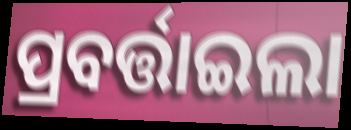
ପ୍ରବର୍ତ୍ତାଇଲା